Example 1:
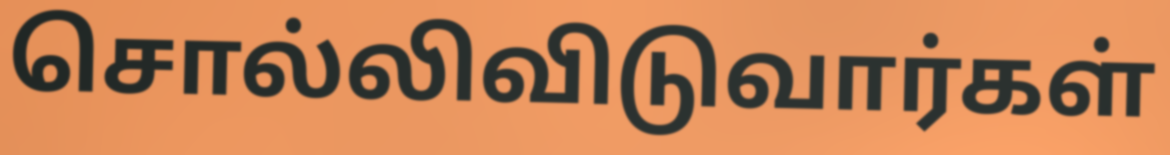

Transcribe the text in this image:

சொல்லிவிடுவார்கள்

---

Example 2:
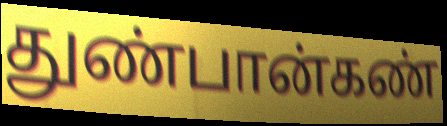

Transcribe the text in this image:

துண்பான்கண்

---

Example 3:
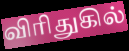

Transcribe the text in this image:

விரிதுகில்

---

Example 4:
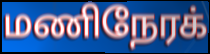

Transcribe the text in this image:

மணிநேரக்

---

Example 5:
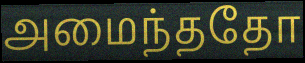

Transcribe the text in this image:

அமைந்ததோ